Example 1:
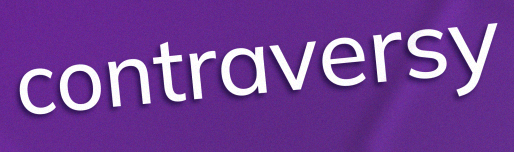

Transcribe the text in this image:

contraversy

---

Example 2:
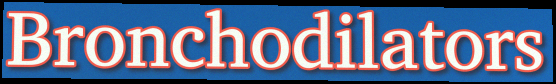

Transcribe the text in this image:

Bronchodilators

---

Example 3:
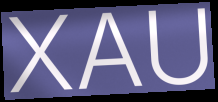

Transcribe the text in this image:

XAU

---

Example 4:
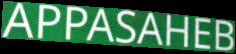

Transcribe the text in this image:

APPASAHEB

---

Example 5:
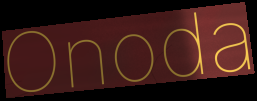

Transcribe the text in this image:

Onoda